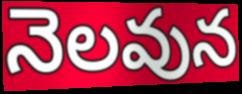
నెలవున